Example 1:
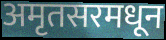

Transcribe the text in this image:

अमृतसरमधून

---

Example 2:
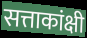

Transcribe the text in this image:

सत्ताकांक्षी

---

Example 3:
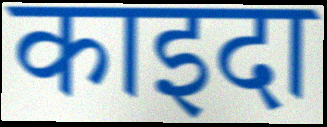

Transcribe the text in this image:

काइदा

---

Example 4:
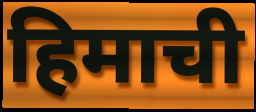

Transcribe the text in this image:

हिमाची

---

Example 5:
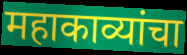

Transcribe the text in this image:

महाकाव्यांचा